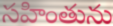
సహింతును